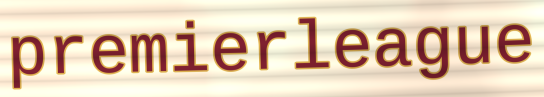
premierleague